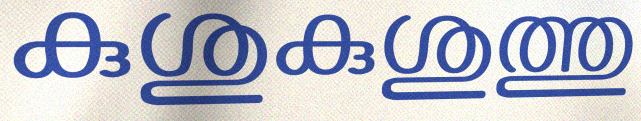
കുശുകുശുത്തു